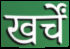
खर्चें